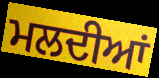
ਮਲਦੀਆਂ